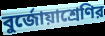
বুর্জোয়াশ্রেণির